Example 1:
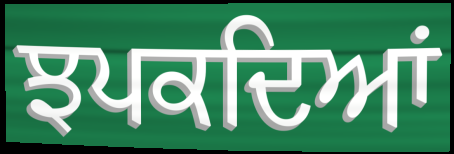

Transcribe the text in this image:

ਝਪਕਦਿਆਂ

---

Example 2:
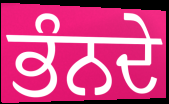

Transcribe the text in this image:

ਭੰਨਦੇ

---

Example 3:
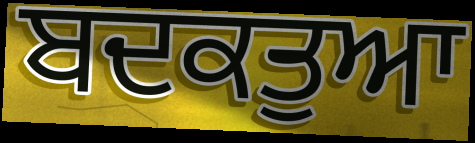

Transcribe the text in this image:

ਬਦਕਤੁਆ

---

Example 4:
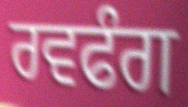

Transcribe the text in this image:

ਰਵਫੰਗ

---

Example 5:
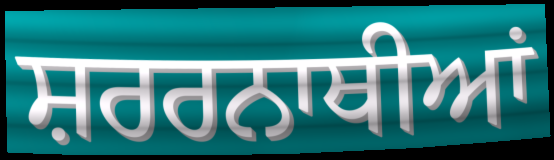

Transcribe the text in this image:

ਸ਼ਰਰਨਾਥੀਆਂ